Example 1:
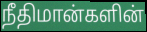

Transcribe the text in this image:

நீதிமான்களின்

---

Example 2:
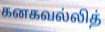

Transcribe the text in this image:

கனகவல்லித்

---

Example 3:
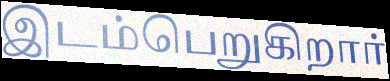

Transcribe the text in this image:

இடம்பெறுகிறார்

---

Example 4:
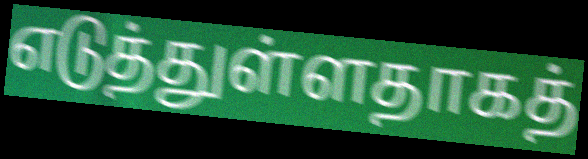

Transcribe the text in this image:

எடுத்துள்ளதாகத்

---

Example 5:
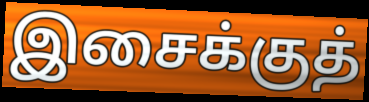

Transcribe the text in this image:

இசைக்குத்